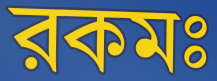
রকমঃ